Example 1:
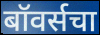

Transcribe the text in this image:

बॉवर्सचा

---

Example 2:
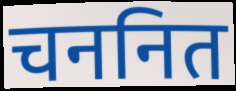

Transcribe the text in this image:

चननित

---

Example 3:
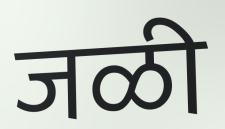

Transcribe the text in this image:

जळी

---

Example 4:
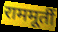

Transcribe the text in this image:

राममूर्ती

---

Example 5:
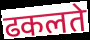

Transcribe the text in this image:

ढकलते